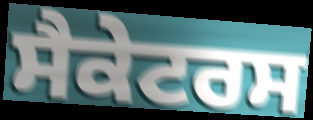
ਸੈਕੇਟਰਸ